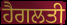
ਹੈਗਲਤੀ